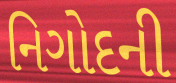
નિગોદની